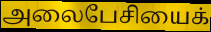
அலைபேசியைக்